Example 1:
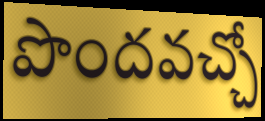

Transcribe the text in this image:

పొందవచ్చో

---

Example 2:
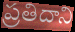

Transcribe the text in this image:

ప్రతిదాని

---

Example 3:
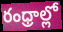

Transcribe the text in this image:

రంధ్రాల్లో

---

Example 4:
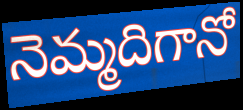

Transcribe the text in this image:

నెమ్మదిగానో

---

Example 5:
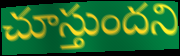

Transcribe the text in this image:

చూస్తుందని